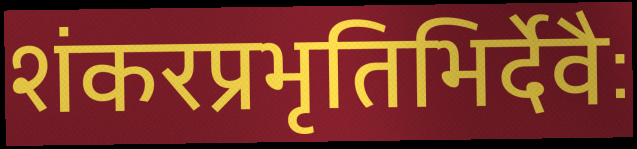
शंकरप्रभृतिभिर्देवैः